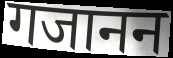
गजानन